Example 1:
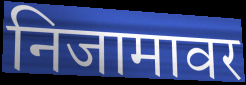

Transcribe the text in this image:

निजामावर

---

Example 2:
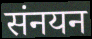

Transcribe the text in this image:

संनयन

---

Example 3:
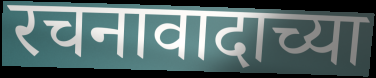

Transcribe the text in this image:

रचनावादाच्या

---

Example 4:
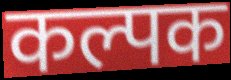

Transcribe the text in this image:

कल्पक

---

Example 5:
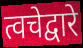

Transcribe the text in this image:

त्वचेद्वारे